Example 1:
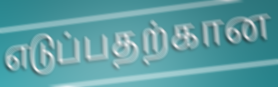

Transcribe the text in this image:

எடுப்பதற்கான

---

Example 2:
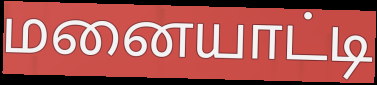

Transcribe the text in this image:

மனையாட்டி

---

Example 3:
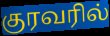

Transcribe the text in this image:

குரவரில்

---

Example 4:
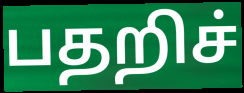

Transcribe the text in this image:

பதறிச்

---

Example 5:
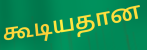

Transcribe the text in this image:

கூடியதான